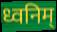
ध्वनिम्